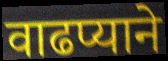
वाढप्याने